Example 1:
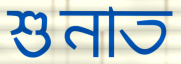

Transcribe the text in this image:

শুনাত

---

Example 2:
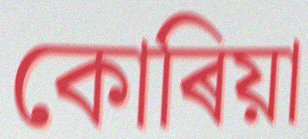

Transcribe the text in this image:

কোৰিয়া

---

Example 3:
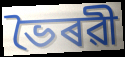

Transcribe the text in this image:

ভৈৰৱী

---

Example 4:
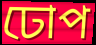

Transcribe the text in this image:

ঢোপ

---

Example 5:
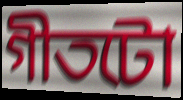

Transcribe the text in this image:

গীতটো